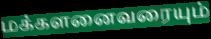
மக்களனைவரையும்